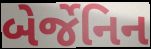
બેર્જેનિન